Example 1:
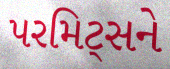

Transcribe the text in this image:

પરમિટ્સને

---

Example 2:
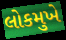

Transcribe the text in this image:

લોકમુખે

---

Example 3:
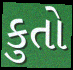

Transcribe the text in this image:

કુતો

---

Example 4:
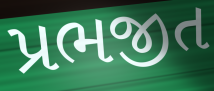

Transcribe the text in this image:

પ્રભજીત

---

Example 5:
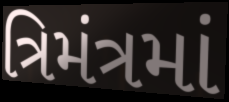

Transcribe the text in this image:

ત્રિમંત્રમાં